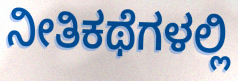
ನೀತಿಕಥೆಗಳಲ್ಲಿ